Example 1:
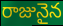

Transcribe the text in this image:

రాజునైన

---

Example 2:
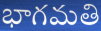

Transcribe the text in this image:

భాగమతి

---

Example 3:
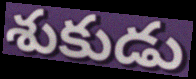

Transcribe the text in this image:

శుకుడు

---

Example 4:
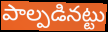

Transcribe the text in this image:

పాల్పడినట్టు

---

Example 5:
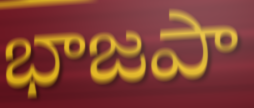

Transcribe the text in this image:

భాజపా